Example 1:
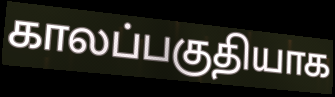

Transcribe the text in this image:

காலப்பகுதியாக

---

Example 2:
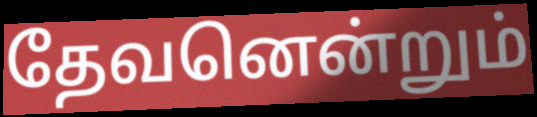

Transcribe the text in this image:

தேவனென்றும்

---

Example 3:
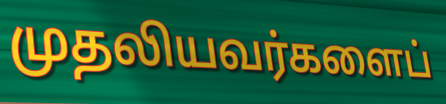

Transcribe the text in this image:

முதலியவர்களைப்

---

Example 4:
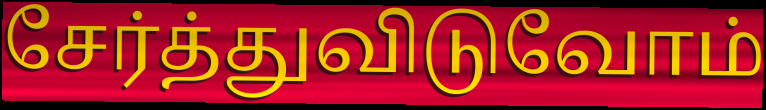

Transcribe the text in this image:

சேர்த்துவிடுவோம்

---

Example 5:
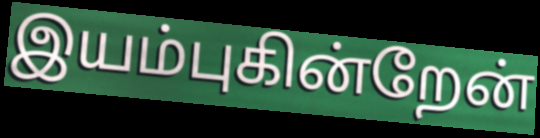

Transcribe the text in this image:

இயம்புகின்றேன்